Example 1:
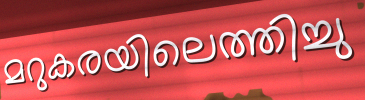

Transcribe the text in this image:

മറുകരയിലെത്തിച്ചു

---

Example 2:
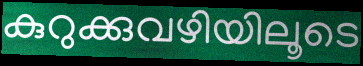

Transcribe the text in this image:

കുറുക്കുവഴിയിലൂടെ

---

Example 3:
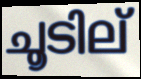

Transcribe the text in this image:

ചൂടില്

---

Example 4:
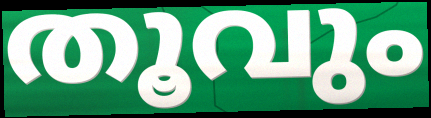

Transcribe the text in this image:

തൂവും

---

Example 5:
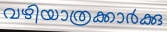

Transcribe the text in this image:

വഴിയാത്രക്കാർക്കു